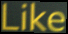
Like